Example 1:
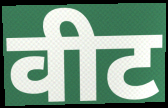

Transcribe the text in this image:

वीट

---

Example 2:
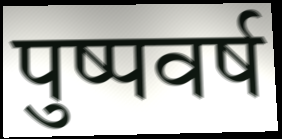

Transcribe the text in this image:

पुष्पवर्ष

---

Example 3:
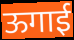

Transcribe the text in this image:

ऊगाई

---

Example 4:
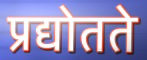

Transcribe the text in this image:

प्रद्योतते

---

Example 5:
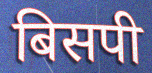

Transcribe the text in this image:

बिसपी